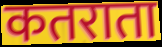
कतराता